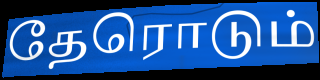
தேரொடும்